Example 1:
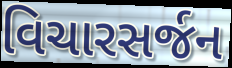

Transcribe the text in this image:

વિચારસર્જન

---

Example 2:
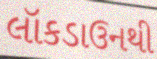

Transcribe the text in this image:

લૉકડાઉનથી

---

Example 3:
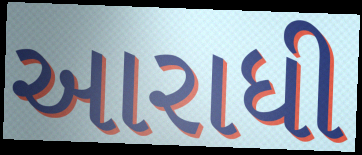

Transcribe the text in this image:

આરાધી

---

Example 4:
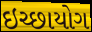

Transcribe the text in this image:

ઇચ્છાયોગ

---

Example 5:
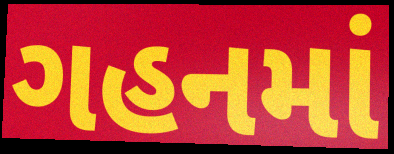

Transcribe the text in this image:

ગહનમાં